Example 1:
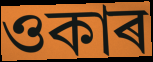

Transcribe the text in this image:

ওকাৰ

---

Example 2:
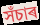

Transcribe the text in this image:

সঁচাৰ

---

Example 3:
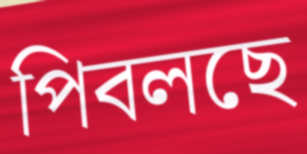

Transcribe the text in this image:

পিবলছে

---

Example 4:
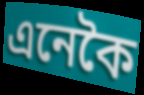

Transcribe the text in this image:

এনেকৈ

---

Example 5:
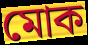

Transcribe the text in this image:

মোক